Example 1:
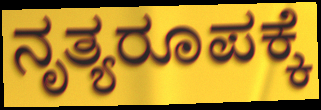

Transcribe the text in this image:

ನೃತ್ಯರೂಪಕ್ಕೆ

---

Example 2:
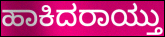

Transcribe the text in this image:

ಹಾಕಿದರಾಯ್ತು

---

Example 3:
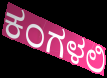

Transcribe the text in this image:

ಕಂಗಳಲಿ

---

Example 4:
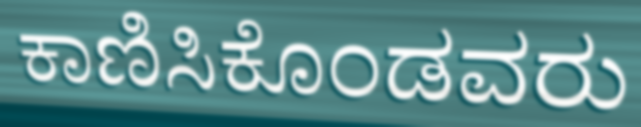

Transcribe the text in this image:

ಕಾಣಿಸಿಕೊಂಡವರು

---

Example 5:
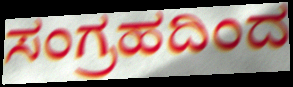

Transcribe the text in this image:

ಸಂಗ್ರಹದಿಂದ